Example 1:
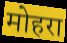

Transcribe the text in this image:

मोहरा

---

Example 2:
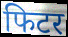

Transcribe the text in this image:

फिटर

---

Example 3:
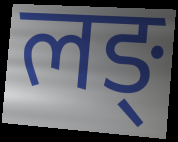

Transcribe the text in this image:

लङ्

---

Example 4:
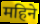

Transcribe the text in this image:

महिने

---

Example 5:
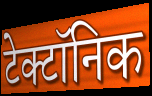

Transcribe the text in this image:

टेक्टॉनिक